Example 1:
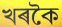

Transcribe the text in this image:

খৰকৈ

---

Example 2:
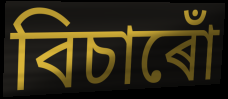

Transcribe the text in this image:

বিচাৰোঁ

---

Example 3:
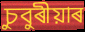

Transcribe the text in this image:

চুবুৰীয়াৰ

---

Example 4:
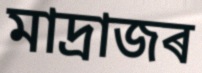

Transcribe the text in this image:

মাদ্ৰাজৰ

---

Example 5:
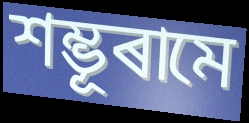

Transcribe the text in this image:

শম্ভূৰামে